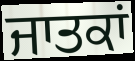
ਜਾਤਕਾਂ